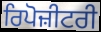
ਰਿਪੋਜ਼ੀਟਰੀ